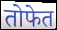
तोफेत